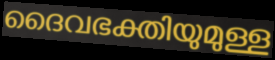
ദൈവഭക്തിയുമുള്ള